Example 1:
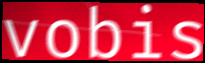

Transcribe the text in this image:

vobis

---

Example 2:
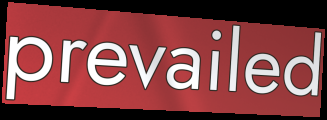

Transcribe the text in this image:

prevailed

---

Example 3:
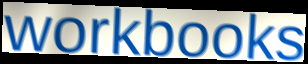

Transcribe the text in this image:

workbooks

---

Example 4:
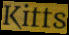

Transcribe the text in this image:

Kitts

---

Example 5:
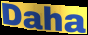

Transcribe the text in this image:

Daha